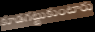
కూడగట్టుకుంటారు